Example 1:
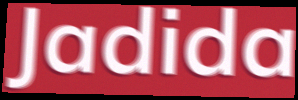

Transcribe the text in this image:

Jadida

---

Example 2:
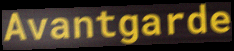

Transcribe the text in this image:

Avantgarde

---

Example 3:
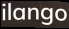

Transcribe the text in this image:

ilango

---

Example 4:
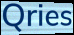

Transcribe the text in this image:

Qries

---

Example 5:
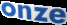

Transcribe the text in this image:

onze